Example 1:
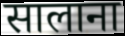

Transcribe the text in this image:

सालाना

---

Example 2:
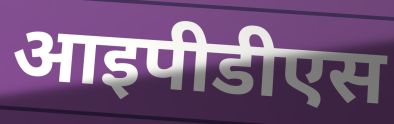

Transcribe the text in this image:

आइपीडीएस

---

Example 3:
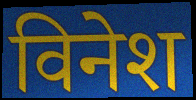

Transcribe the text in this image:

विनेश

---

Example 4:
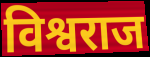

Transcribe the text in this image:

विश्वराज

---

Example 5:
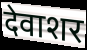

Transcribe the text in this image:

देवाशर